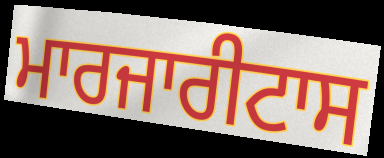
ਮਾਰਜਾਰੀਟਾਸ